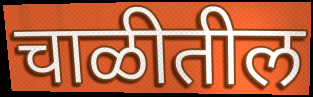
चाळीतील